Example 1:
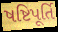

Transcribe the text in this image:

ષષ્ટિપૂર્તિ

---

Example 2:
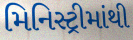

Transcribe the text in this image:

મિનિસ્ટ્રીમાંથી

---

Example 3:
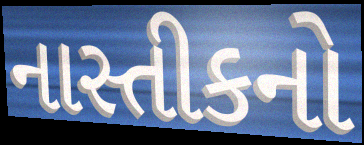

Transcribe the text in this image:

નાસ્તીકનો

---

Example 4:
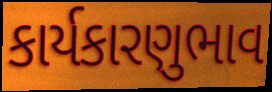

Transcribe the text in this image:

કાર્યકારણુભાવ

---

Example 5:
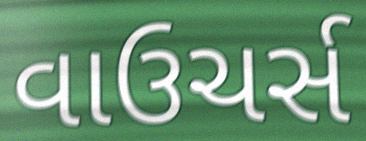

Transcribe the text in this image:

વાઉચર્સ